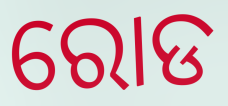
ରୋଡ